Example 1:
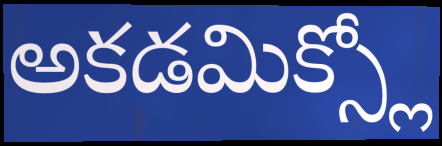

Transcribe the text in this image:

అకడమిక్స్లో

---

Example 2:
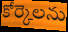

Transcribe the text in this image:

కోర్కెలను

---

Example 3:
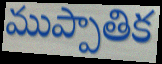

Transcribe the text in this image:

ముప్పాతిక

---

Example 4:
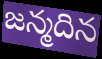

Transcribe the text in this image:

జన్మదిన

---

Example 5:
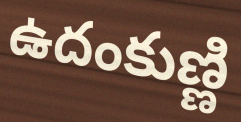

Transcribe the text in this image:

ఉదంకుణ్ణి